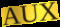
AUX